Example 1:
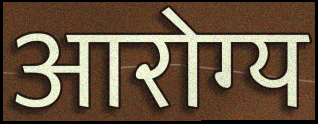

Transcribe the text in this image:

आरोग्य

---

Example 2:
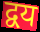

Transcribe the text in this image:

द्वय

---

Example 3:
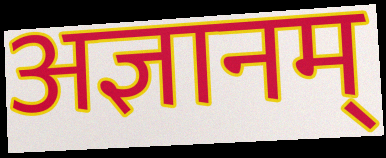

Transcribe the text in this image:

अज्ञानम्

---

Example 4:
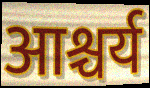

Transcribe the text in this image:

आश्चर्य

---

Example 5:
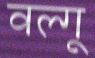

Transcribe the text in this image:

वल्गू